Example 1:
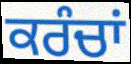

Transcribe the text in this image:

ਕਰੰਚਾਂ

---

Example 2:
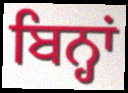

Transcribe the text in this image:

ਬਿਨ੍ਹਾਂ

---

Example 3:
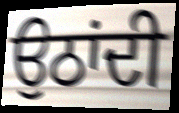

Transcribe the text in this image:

ਉਠਾਂਦੀ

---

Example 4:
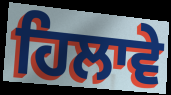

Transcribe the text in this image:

ਹਿਲਾਵੇ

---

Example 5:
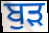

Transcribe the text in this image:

ਬੁੜ